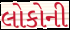
લોકોની